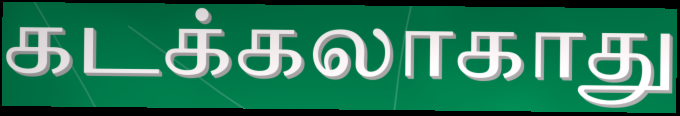
கடக்கலாகாது